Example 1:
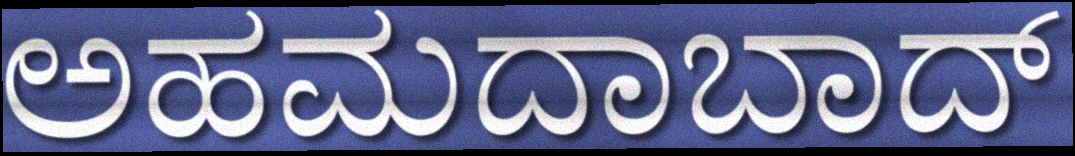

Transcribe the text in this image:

ಅಹಮದಾಬಾದ್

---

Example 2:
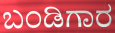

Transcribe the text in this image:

ಬಂಡಿಗಾರ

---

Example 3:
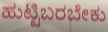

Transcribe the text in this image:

ಹುಟ್ಟಿಬರಬೇಕು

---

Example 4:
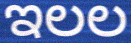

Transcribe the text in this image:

ಇಲಲ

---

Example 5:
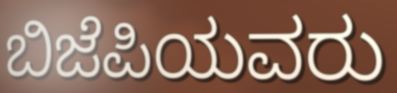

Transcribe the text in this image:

ಬಿಜೆಪಿಯವರು